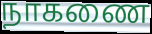
நாகணை